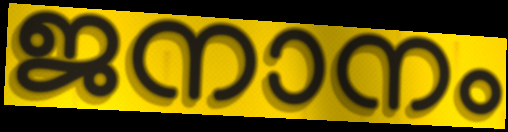
ജനാനം